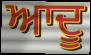
ਆਦੂ